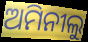
ଅମିନୀଲୁ